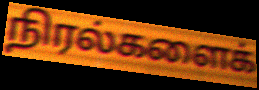
நிரல்களைக்